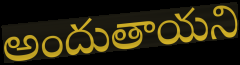
అందుతాయని